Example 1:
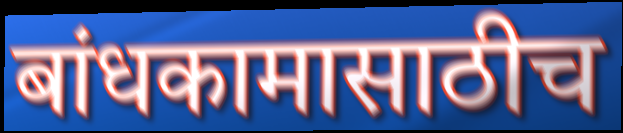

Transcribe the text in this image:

बांधकामासाठीच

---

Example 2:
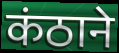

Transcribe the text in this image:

कंठाने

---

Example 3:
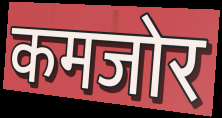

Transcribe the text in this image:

कमजोर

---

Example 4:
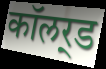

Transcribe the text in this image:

कॉलर्ड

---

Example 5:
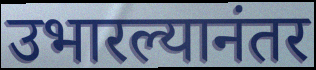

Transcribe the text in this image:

उभारल्यानंतर